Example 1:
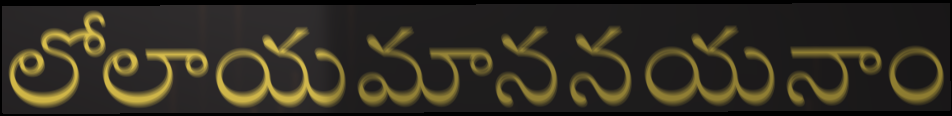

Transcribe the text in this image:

లోలాయమాననయనాం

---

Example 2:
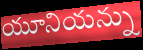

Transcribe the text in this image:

యూనియన్ను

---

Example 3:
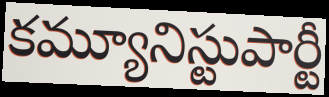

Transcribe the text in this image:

కమ్యూనిస్టుపార్టీ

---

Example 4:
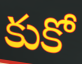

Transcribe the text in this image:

కుకో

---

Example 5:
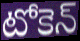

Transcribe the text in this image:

టోకెన్